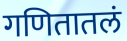
गणितातलं